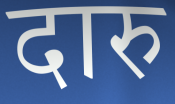
दारु